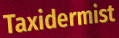
Taxidermist